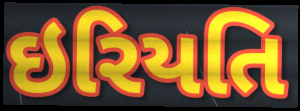
ઇરિયતિ